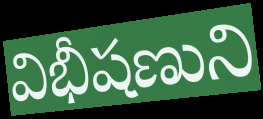
విభీషణుని